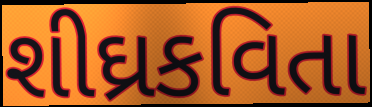
શીઘ્રકવિતા